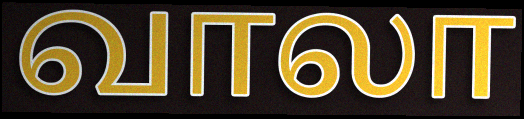
வாலா